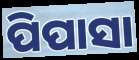
ପିପାସା